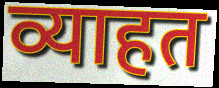
व्याहत